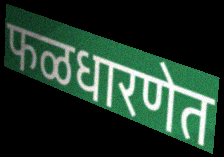
फळधारणेत